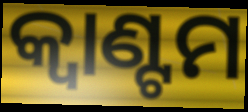
କ୍ୱାଣ୍ଟମ